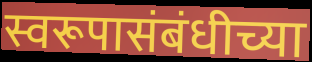
स्वरूपासंबंधीच्या